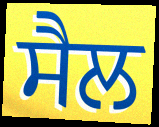
ਸੈਲ